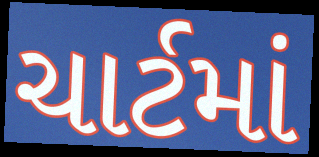
ચાર્ટમાં